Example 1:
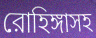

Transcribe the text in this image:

রোহিঙ্গাসহ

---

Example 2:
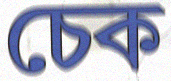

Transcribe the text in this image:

চেক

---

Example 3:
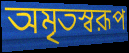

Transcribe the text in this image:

অমৃতস্বরূপ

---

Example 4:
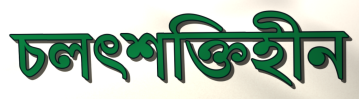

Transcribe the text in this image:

চলৎশক্তিহীন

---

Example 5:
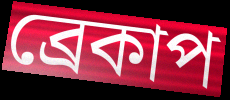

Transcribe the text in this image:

ব্রেকাপ